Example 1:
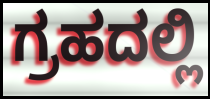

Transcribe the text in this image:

ಗ್ರಹದಲ್ಲಿ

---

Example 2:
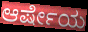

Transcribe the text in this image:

ಆರ್ಷೇಯ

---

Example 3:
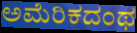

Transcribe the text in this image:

ಅಮೆರಿಕದಂಥ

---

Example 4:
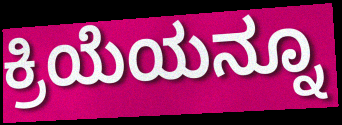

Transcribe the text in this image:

ಕ್ರಿಯೆಯನ್ನೂ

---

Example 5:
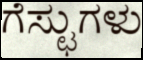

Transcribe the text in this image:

ಗೆಸ್ಟುಗಳು